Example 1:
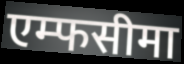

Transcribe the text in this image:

एम्फसीमा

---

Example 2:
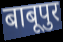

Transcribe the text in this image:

बाबूपुर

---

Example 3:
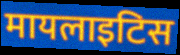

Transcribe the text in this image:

मायलाइटिस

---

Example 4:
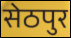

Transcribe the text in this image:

सेठपुर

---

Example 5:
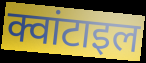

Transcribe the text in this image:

क्वांटाइल